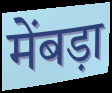
मेंबड़ा